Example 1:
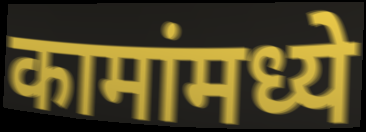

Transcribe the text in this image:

कामांमध्ये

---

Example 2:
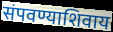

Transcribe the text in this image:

संपवण्याशिवाय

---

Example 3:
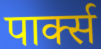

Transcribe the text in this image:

पार्क्स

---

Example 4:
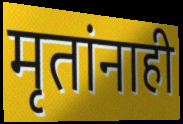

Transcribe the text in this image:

मृतांनाही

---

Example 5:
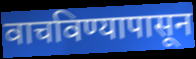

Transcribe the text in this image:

वाचविण्यापासून